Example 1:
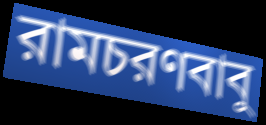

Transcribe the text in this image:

রামচরণবাবু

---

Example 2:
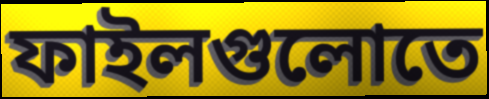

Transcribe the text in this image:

ফাইলগুলোতে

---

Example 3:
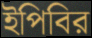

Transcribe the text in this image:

ইপিবির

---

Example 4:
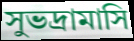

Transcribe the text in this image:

সুভদ্রামাসি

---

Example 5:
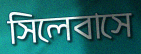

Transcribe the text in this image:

সিলেবাসে